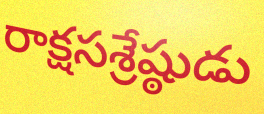
రాక్షసశ్రేష్ఠుడు